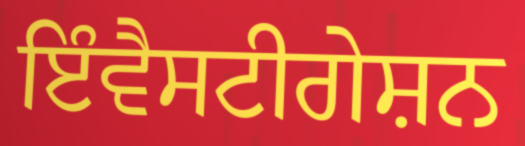
ਇੰਵੈਸਟੀਗੇਸ਼ਨ